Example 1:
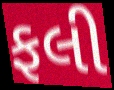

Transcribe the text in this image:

ફલી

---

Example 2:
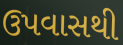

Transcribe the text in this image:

ઉપવાસથી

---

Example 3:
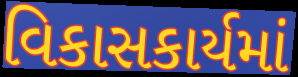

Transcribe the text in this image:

વિકાસકાર્યમાં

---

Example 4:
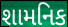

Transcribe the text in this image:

શામનિક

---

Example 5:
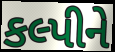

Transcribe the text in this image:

કલ્પીને